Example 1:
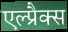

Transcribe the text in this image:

एल्प्रैक्स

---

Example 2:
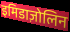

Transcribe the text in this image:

इमिडाज़ोलिन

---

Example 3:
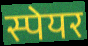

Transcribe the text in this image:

स्पेयर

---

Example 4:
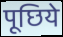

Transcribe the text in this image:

पूछिये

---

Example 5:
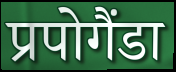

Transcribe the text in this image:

प्रपोगैंडा